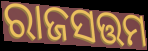
ରାଜସତ୍ତମ